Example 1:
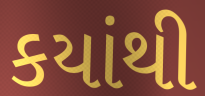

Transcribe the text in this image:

કયાંથી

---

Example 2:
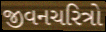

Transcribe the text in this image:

જીવનચરિત્રો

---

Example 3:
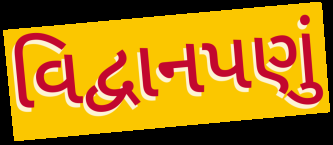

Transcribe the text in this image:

વિદ્વાનપણું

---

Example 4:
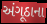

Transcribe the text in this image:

અંગૂઠાના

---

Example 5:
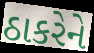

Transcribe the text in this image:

ઠાકરેને